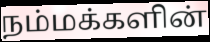
நம்மக்களின்